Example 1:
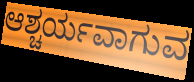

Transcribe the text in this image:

ಆಶ್ಚರ್ಯವಾಗುವ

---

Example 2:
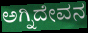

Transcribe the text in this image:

ಅಗ್ನಿದೇವನ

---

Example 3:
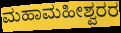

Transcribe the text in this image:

ಮಹಾಮಹೀಶ್ವರರ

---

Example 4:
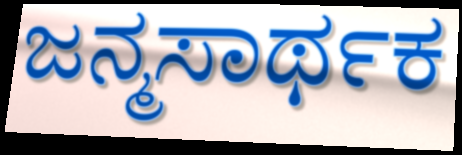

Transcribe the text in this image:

ಜನ್ಮಸಾರ್ಥಕ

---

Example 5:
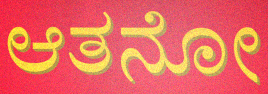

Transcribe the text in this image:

ಆತನೋ